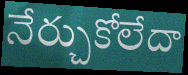
నేర్చుకోలేదా